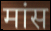
मांस